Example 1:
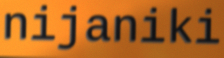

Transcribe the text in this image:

nijaniki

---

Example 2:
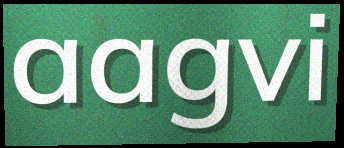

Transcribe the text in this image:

aagvi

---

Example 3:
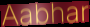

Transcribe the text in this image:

Aabhar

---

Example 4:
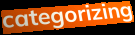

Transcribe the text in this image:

categorizing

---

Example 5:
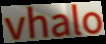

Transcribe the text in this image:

vhalo